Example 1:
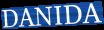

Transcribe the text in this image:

DANIDA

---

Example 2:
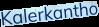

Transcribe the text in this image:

Kalerkantho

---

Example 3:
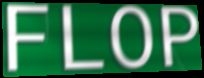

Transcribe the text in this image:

FLOP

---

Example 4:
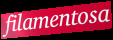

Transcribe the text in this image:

filamentosa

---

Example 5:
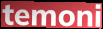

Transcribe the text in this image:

temoni